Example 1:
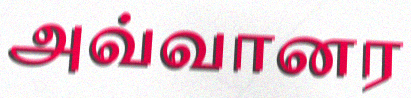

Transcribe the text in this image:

அவ்வானர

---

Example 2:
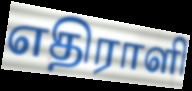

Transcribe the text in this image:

எதிராளி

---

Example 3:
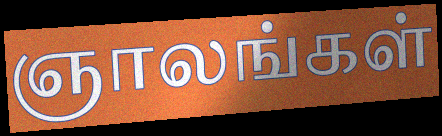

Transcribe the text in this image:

ஞாலங்கள்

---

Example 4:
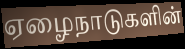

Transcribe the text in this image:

ஏழைநாடுகளின்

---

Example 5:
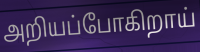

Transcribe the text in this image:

அறியப்போகிறாய்